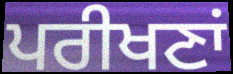
ਪਰੀਖਣਾਂ